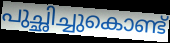
പുച്ഛിച്ചുകൊണ്ട്